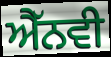
ਐੱਨਵੀ